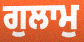
ਗੁਲਾਮੁ